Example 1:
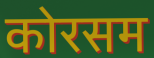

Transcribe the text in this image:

कोरसम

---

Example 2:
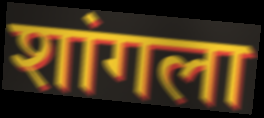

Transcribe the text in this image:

शांगला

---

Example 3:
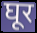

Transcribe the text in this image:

घूर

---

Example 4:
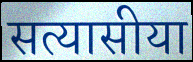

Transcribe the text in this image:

सत्यासीया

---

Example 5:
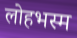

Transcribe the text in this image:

लोहभस्म